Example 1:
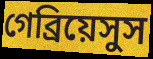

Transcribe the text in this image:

গেব্রিয়েসুস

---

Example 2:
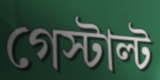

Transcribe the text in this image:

গেস্টাল্ট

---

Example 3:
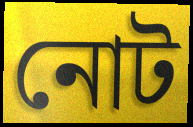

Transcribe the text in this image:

নোট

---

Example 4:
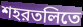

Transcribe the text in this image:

শহরতলিতে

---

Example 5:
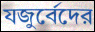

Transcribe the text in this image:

যজুর্বেদের